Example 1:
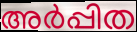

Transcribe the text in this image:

അർപ്പിത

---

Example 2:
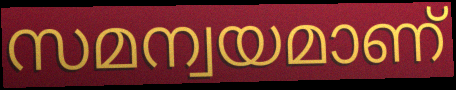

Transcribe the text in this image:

സമന്വയമാണ്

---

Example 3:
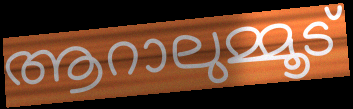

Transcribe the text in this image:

ആറാലുമ്മൂട്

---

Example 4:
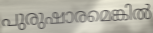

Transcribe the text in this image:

പുരുഷാരമെങ്കിൽ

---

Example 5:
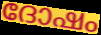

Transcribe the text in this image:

ദോഷം